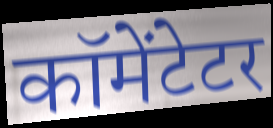
कॉमेंटेटर